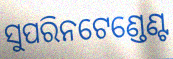
ସୁପରିନଟେଣ୍ଡେଣ୍ଟ